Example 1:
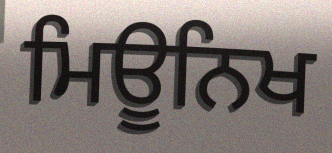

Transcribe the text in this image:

ਮਿਊਨਿਖ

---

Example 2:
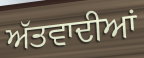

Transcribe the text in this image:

ਅੱਤਵਾਦੀਆਂ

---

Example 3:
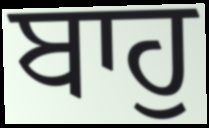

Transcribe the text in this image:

ਬਾਹੁ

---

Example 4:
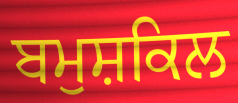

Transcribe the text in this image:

ਬਮੁਸ਼ਕਿਲ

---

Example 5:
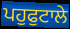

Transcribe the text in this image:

ਪਹੁਫੁਟਾਲੇ